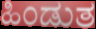
ಹಿಂಡುತ